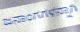
ಜನಾಂಗಗಳನ್ನಾಗಿ